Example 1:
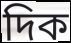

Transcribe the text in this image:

দিক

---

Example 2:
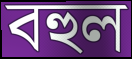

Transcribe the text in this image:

বহুল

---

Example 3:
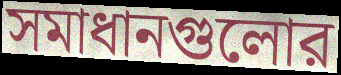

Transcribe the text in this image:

সমাধানগুলোর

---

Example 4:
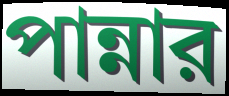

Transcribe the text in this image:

পান্নার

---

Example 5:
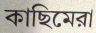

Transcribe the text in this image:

কাছিমেরা